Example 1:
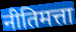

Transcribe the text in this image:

नीतिमत्ता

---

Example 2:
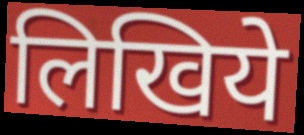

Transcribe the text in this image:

लिखिये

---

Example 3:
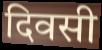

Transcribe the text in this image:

दिवसी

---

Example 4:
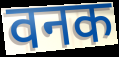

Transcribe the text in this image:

वनक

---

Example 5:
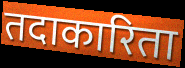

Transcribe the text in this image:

तदाकारिता